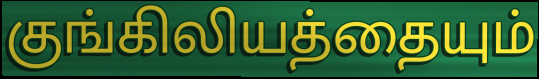
குங்கிலியத்தையும்